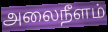
அலைநீளம்